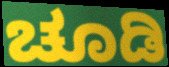
ಚೂಡಿ